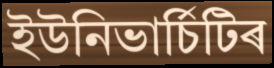
ইউনিভাৰ্চিটিৰ